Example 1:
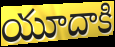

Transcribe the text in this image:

యూదాకి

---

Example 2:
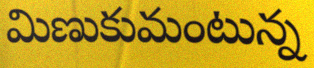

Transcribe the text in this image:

మిణుకుమంటున్న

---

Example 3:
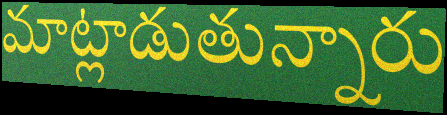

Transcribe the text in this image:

మాట్లాడుతున్నారు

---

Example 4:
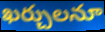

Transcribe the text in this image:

ఖర్చులనూ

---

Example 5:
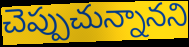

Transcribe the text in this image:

చెప్పుచున్నానని